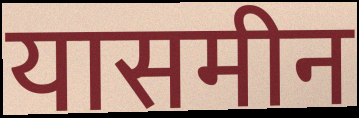
यासमीन